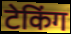
टेकिंग